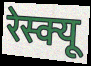
रेस्क्यू